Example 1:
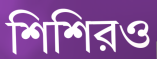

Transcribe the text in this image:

শিশিরও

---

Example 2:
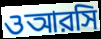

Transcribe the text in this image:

ওআরসি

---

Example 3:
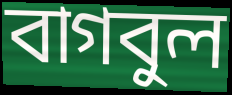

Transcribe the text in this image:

বাগবুল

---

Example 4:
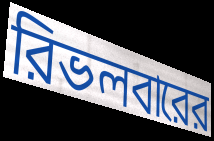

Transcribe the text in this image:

রিভলবারের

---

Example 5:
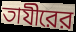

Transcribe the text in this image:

তাযীরের